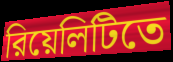
রিয়েলিটিতে